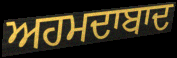
ਅਹਮਦਾਬਾਦ